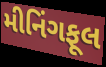
મીનિંગફૂલ